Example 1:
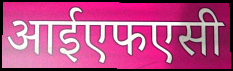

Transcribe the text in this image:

आईएफएसी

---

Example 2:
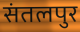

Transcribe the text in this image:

संतलपुर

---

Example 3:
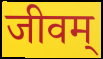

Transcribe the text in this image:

जीवम्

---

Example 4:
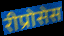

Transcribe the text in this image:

रीप्रोसेस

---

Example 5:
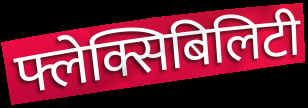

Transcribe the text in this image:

फ्लेक्सिबिलिटी